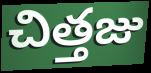
చిత్తజు